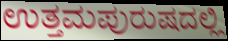
ಉತ್ತಮಪುರುಷದಲ್ಲಿ